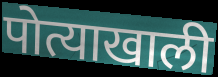
पोत्याखाली